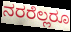
ನರರೆಲ್ಲರೂ